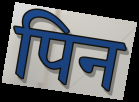
पिन